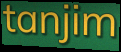
tanjim